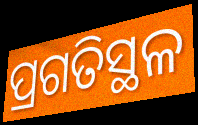
ପ୍ରଗତିସ୍ଥଳ